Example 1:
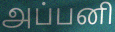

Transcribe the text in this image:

அப்பனி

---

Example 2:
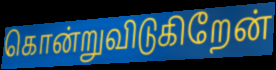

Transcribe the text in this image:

கொன்றுவிடுகிறேன்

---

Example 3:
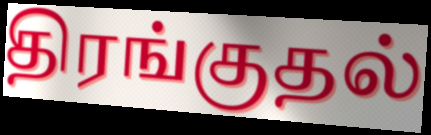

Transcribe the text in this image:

திரங்குதல்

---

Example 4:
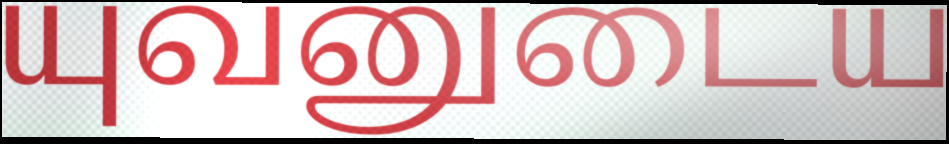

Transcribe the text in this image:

யுவனுடைய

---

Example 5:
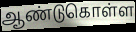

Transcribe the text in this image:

ஆண்டுகொள்ள